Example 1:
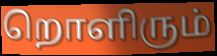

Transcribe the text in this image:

றொளிரும்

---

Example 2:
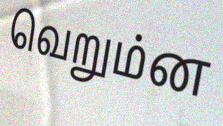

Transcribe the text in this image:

வெறும்ன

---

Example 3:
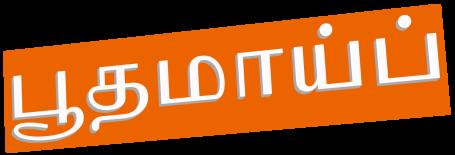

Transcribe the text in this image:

பூதமாய்ப்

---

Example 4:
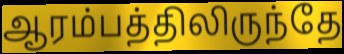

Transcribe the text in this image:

ஆரம்பத்திலிருந்தே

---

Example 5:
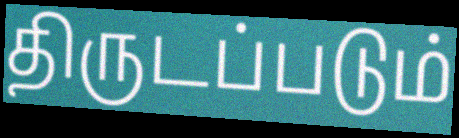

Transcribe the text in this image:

திருடப்படும்